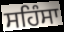
ਸਹਿੰਸਾ